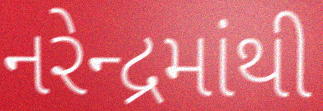
નરેન્દ્રમાંથી